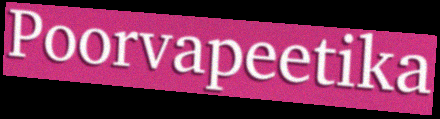
Poorvapeetika